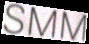
SMM